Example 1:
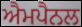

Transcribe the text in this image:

ਐਮਪੈਨਲ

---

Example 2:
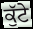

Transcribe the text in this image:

ਕੁੱਟੇ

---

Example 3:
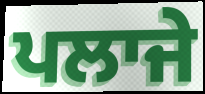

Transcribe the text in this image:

ਪਲਾਜੇ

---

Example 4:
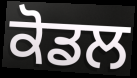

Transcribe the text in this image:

ਕੋਡਲ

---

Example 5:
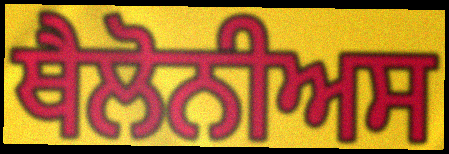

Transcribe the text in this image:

ਥੈਲੋਨੀਅਸ